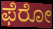
ಫೆರೋ